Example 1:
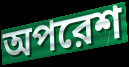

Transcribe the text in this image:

অপরেশ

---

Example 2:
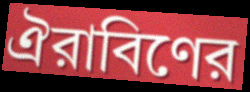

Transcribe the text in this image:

ঐরাবিণের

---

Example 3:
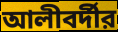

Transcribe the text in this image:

আলীবর্দীর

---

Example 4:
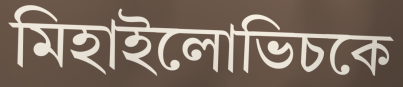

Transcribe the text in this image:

মিহাইলোভিচকে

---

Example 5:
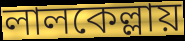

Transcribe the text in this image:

লালকেল্লায়